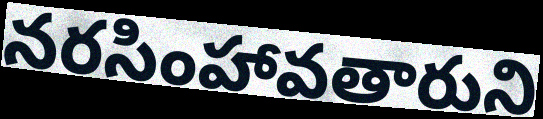
నరసింహావతారుని